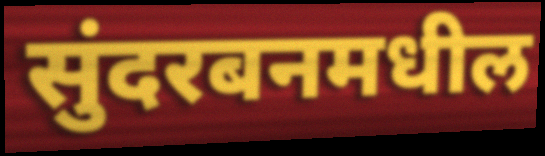
सुंदरबनमधील